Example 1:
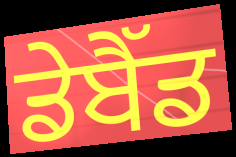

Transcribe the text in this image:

ਡੇਬੈੱਡ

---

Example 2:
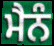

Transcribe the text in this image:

ਮੈਨੰ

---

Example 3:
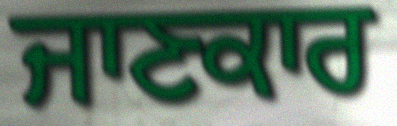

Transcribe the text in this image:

ਜਾਣਕਾਰ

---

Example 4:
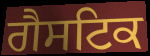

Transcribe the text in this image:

ਗੈਸਟਿਕ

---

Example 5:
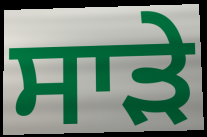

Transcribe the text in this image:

ਸਾੜੇ